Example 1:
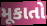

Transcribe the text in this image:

મૂકાતો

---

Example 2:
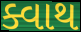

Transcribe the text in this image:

ક્વાથ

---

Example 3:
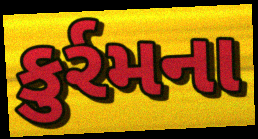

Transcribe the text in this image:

કુર્રમના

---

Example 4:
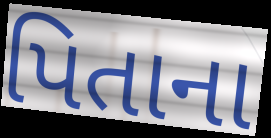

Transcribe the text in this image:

પિતાના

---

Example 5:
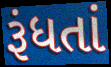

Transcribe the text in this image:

રૂંધતાં